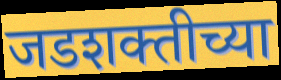
जडशक्तीच्या